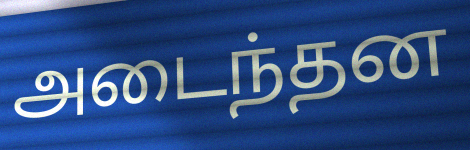
அடைந்தன